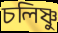
চলিষ্ণু